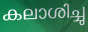
കലാശിച്ചു